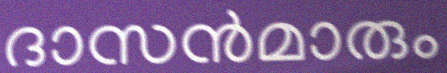
ദാസൻമാരും